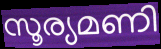
സൂര്യമണി